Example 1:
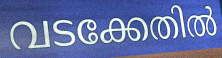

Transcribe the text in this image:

വടക്കേതിൽ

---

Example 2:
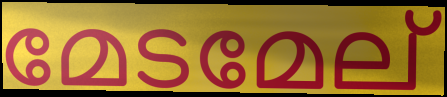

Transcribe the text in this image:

മേടമേല്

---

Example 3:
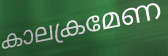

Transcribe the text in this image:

കാലക്രമേണ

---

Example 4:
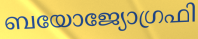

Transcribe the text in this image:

ബയോജ്യോഗ്രഫി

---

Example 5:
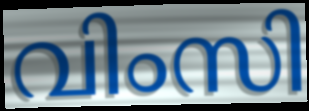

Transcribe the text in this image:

വിംസി